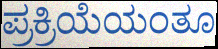
ಪ್ರಕ್ರಿಯೆಯಂತೂ